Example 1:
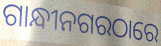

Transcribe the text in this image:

ଗାନ୍ଧୀନଗରଠାରେ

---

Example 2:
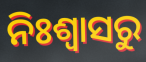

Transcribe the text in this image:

ନିଃଶ୍ଵାସରୁ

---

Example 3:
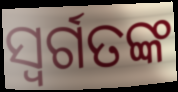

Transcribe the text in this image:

ସ୍ୱର୍ଗତଙ୍କ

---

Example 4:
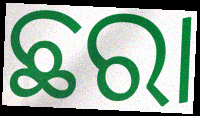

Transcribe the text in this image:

ଛରା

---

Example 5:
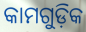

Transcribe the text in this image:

କାମଗୁଡ଼ିକ